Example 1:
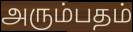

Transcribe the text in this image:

அரும்பதம்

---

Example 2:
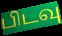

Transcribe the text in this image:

பிடவு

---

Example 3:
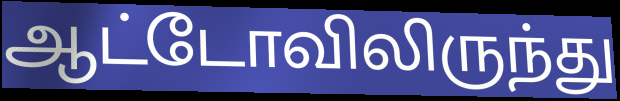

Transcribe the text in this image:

ஆட்டோவிலிருந்து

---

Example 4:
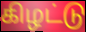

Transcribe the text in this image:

கிழட்டு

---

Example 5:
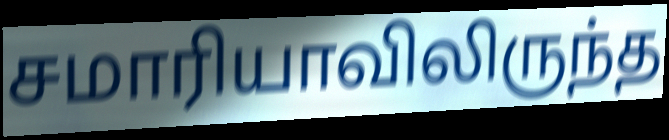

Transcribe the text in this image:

சமாரியாவிலிருந்த